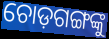
ଚୋଡ଼ଗଙ୍ଗଙ୍କୁ